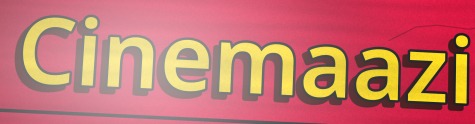
Cinemaazi